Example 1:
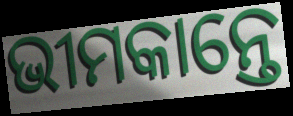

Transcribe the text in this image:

ଭୀମକାନ୍ତେ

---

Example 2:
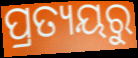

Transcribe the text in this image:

ପ୍ରତ୍ୟୟରୁ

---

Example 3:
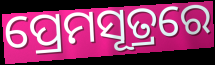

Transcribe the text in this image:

ପ୍ରେମସୂତ୍ରରେ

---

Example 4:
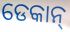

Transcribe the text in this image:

ଡେକାନ୍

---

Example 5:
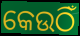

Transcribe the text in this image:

କେଉଠିଁ